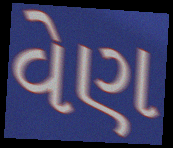
વેણ